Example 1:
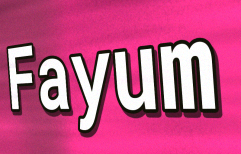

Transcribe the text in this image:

Fayum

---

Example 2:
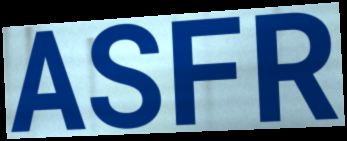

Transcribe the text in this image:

ASFR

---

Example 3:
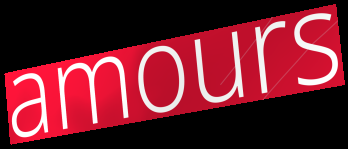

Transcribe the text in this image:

amours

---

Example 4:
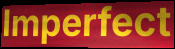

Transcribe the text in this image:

Imperfect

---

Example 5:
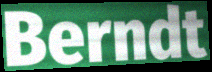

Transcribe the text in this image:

Berndt